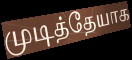
முடித்தேயாக